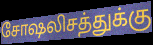
சோஷலிசத்துக்கு